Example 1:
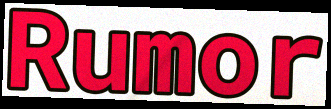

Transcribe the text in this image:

Rumor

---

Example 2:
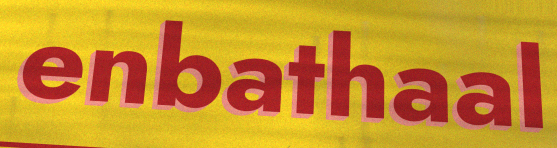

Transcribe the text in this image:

enbathaal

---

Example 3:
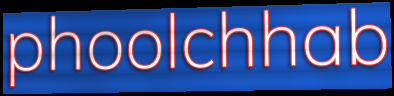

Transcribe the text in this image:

phoolchhab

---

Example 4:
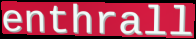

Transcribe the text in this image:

enthrall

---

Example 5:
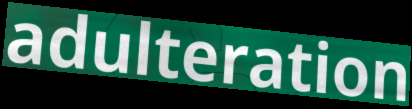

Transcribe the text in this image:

adulteration